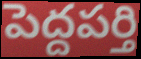
పెద్దపర్తి